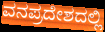
ವನಪ್ರದೇಶದಲ್ಲಿ